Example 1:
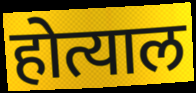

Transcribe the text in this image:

होत्याल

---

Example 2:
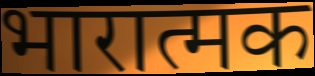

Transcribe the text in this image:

भारात्मक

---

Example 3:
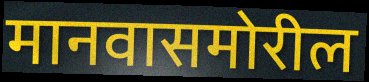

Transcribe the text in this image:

मानवासमोरील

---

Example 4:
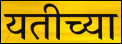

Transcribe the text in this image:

यतीच्या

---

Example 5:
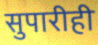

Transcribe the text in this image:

सुपारीही